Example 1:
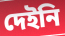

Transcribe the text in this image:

দেইনি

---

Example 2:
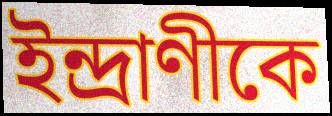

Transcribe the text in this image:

ইন্দ্রাণীকে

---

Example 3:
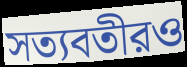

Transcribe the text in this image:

সত্যবতীরও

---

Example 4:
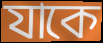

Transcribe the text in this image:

যাকে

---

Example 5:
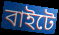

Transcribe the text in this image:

বাইটে